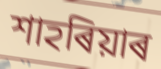
শাহৰিয়াৰ